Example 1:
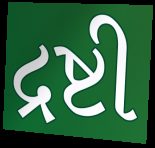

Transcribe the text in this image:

દ્રષ્ટી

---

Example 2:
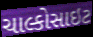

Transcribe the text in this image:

ચાલ્કોસાઇટ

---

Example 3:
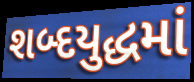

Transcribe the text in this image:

શબ્દયુદ્ધમાં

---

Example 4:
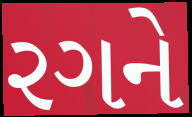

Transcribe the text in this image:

રગને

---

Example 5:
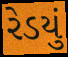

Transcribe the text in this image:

રેડયું